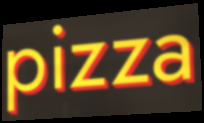
pizza